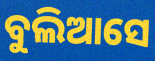
ବୁଲିଆସେ